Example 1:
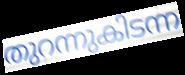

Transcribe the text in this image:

തുറന്നുകിടന്ന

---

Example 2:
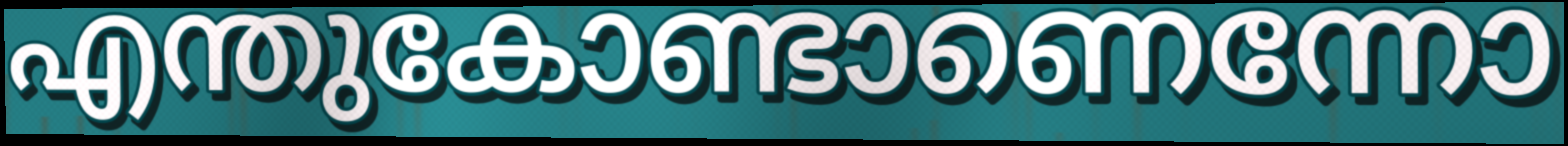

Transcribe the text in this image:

എന്തുകോണ്ടാണെന്നോ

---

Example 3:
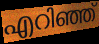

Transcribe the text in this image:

എറിഞ്ഞ്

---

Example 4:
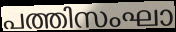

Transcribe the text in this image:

പത്തിസംഘാ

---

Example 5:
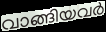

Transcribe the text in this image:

വാങ്ങിയവർ